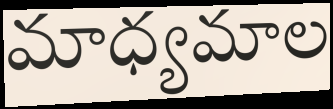
మాధ్యమాల